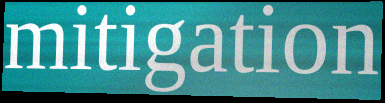
mitigation